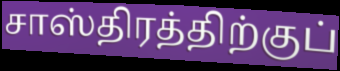
சாஸ்திரத்திற்குப்